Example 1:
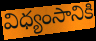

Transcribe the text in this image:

విధ్యంసానికి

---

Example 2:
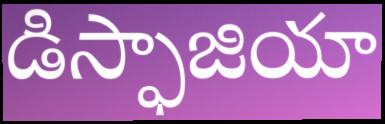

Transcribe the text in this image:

డిస్ఫాజియా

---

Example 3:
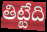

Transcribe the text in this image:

తిట్టేది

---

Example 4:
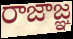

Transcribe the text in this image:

రాజాజ్ఞ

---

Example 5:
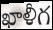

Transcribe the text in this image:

ఖాళీగ